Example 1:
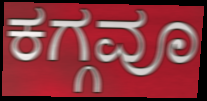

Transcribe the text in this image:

ಕಗ್ಗವೂ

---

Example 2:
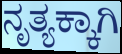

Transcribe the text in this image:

ನೃತ್ಯಕ್ಕಾಗಿ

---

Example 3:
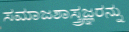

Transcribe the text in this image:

ಸಮಾಜಶಾಸ್ತ್ರಜ್ಞರನ್ನು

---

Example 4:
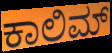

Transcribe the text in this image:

ಕಾಲಿಮ್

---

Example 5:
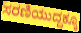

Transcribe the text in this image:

ಸರಣಿಯುದ್ದಕ್ಕೂ